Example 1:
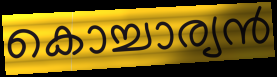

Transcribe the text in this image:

കൊച്ചാര്യൻ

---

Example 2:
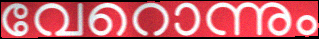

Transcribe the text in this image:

വേറൊന്നും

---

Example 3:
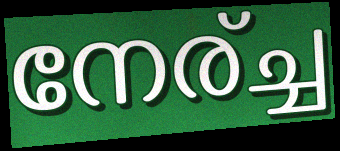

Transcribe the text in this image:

നേര്ച്ച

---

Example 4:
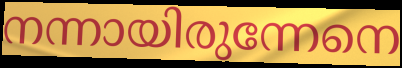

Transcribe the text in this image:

നന്നായിരുന്നേനെ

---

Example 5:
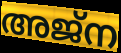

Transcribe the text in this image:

അജ്ന